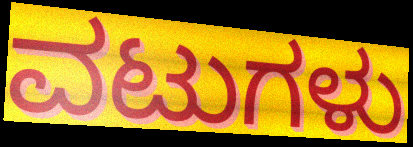
ವಟುಗಳು